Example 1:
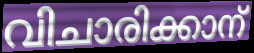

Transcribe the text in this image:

വിചാരിക്കാന്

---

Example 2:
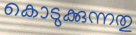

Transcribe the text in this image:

കൊടുക്കുന്നതു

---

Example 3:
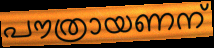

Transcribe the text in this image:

പൗത്രായണന്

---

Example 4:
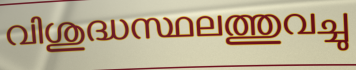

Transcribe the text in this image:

വിശുദ്ധസ്ഥലത്തുവച്ചു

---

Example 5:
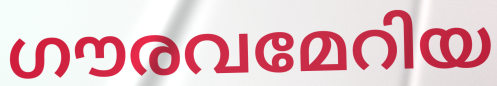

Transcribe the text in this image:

ഗൗരവമേറിയ